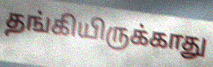
தங்கியிருக்காது